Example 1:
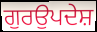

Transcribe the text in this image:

ਗੁਰਉਪਦੇਸ਼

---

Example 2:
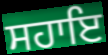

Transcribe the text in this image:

ਸਹਾਇ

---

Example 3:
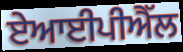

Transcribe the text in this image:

ਏਆਈਪੀਐੱਲ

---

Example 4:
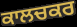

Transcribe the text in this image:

ਕਾਲਚਕਰ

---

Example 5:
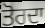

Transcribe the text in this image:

ਤੋਰਦਾ